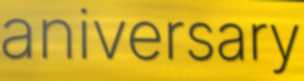
aniversary